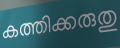
കത്തിക്കരുതു